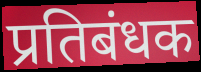
प्रतिबंधक